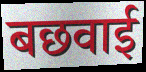
बछवाई